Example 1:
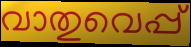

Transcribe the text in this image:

വാതുവെപ്പ്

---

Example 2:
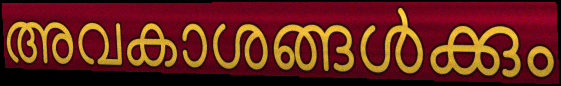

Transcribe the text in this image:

അവകാശങ്ങൾക്കും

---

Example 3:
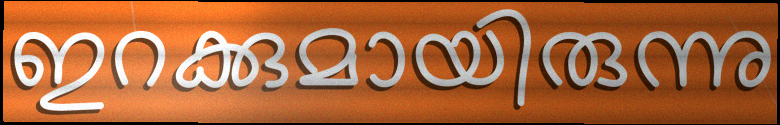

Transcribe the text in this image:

ഇറക്കുമായിരുന്നു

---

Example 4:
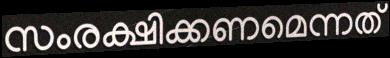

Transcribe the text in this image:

സംരക്ഷിക്കണമെന്നത്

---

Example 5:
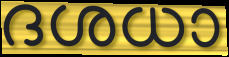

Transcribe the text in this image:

ദശധാ